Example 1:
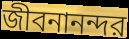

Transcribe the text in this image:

জীবনানন্দর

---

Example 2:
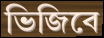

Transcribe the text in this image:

ভিজিবে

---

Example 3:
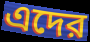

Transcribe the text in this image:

এদের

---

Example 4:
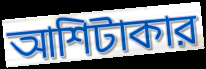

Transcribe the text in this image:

আশিটাকার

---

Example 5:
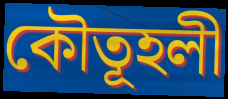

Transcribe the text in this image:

কৌতূহলী